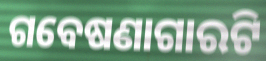
ଗବେଷଣାଗାରଟି